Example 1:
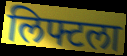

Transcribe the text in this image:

लिफ्टला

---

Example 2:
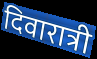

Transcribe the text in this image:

दिवारात्री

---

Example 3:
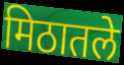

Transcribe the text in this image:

मिठातले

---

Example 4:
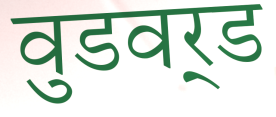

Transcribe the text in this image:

वुडवर्ड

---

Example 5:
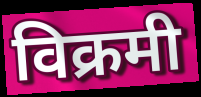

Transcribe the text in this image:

विक्रमी